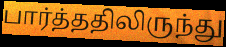
பார்த்ததிலிருந்து